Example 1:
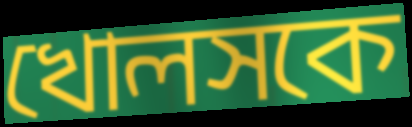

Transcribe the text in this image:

খোলসকে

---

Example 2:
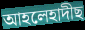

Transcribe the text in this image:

আহলেহাদীছ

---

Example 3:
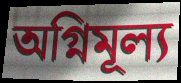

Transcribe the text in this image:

অগ্নিমূল্য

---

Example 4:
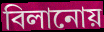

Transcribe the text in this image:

বিলানোয়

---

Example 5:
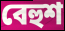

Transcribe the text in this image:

বেহুশ